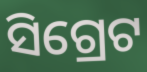
ସିଗ୍ରେଟ